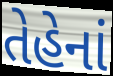
તેહેનાં